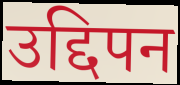
उद्दिपन